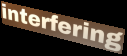
interfering